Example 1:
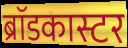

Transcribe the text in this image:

ब्रॉडकास्टर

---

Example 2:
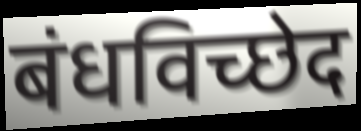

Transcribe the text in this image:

बंधविच्छेद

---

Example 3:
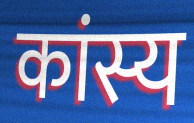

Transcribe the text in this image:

कांस्‍य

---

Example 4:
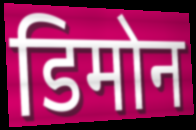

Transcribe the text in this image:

डिमोन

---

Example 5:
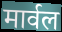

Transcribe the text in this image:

मार्वल